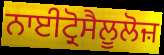
ਨਾਈਟ੍ਰੋਸੈਲੂਲੋਜ਼